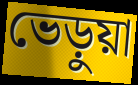
ভেড়ুয়া